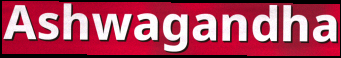
Ashwagandha